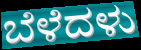
ಬೆಳೆದಳು